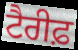
ਟੈਰੀਫ਼